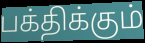
பக்திக்கும்